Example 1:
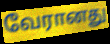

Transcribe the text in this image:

வேரானது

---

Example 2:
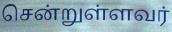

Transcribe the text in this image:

சென்றுள்ளவர்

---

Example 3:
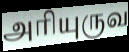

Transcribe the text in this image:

அரியுருவ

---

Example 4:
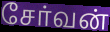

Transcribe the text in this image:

சேர்வன்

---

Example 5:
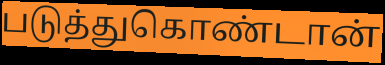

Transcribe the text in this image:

படுத்துகொண்டான்